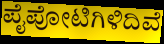
ಪೈಪೋಟಿಗಿಳಿದಿವೆ